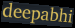
deepabhi